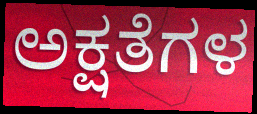
ಅಕ್ಷತೆಗಳ